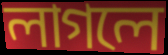
লাগলে